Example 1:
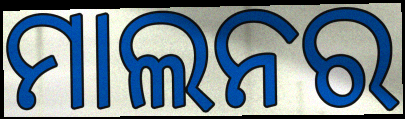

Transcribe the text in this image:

ମାଲନର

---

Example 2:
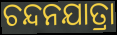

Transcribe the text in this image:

ଚନ୍ଦନଯାତ୍ରା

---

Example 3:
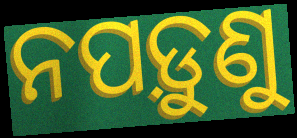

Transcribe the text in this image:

ନପଡ଼ୁଣୁ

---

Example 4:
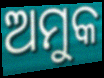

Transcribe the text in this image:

ଅମୁକ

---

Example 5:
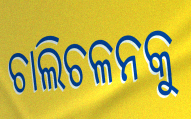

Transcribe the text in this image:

ଚାଲିଚଳନକୁ